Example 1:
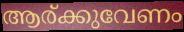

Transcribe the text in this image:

ആര്ക്കുവേണം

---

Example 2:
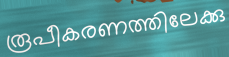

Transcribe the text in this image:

രൂപീകരണത്തിലേക്കു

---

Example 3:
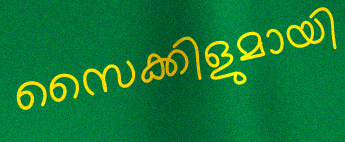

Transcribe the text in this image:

സൈക്കിളുമായി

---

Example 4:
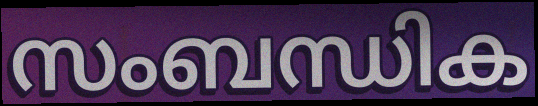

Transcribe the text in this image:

സംബന്ധിക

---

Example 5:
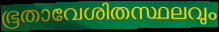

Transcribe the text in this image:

ഭൂതാവേശിതസ്ഥലവും